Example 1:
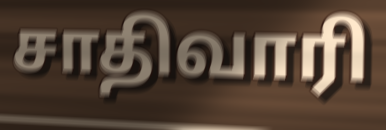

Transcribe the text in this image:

சாதிவாரி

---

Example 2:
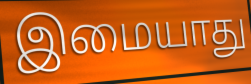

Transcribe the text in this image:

இமையாது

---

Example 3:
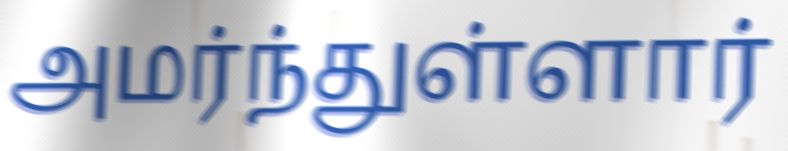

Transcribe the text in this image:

அமர்ந்துள்ளார்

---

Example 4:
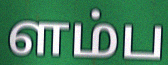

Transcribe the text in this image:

ளம்ப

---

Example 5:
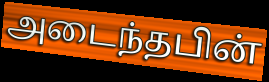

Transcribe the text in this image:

அடைந்தபின்